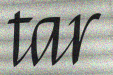
tar